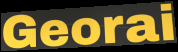
Georai